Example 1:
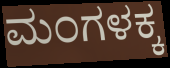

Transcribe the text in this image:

ಮಂಗಳಕ್ಕ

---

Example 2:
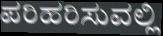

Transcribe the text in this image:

ಪರಿಹರಿಸುವಲ್ಲಿ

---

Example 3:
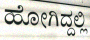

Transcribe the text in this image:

ಹೋಗಿದ್ದಲ್ಲಿ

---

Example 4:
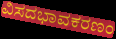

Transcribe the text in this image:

ವಿಸದಭಾವಕರಣಂ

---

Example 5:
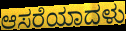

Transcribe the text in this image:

ಆಸರೆಯಾದಳು